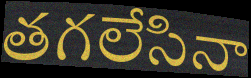
తగలేసినా